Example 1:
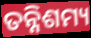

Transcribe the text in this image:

ତନ୍ନିଶମ୍ୟ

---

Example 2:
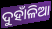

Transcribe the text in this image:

ଦୁହାଁଳିଆ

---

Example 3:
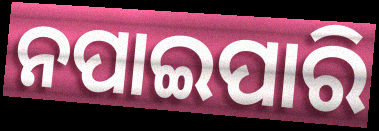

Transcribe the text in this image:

ନପାଇପାରି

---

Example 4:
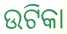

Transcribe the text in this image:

ଉଟିକା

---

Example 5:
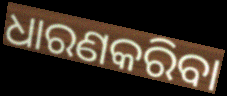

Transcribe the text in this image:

ଧାରଣକରିବା